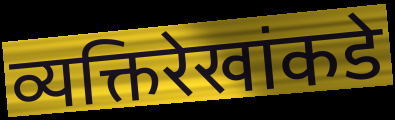
व्यक्तिरेखांकडे